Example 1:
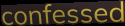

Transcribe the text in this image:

confessed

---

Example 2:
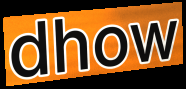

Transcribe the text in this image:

dhow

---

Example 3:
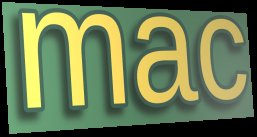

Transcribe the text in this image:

mac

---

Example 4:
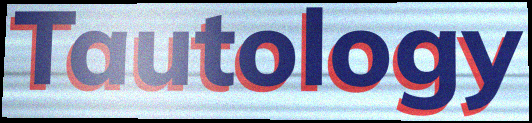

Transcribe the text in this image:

Tautology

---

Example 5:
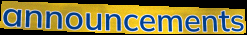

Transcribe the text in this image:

announcements